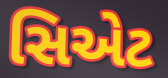
સિએટ